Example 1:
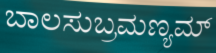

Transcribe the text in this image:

ಬಾಲಸುಬ್ರಮಣ್ಯಮ್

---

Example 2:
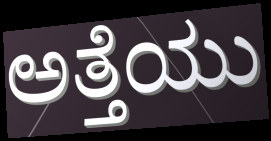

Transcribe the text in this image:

ಅತ್ತೆಯು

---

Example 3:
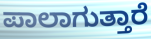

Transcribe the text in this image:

ಪಾಲಾಗುತ್ತಾರೆ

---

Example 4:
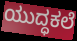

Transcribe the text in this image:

ಯುದ್ಧಕಲೆ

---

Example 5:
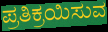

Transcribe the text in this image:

ಪ್ರತಿಕ್ರಯಿಸುವ